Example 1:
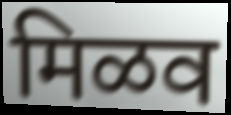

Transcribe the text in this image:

मिळव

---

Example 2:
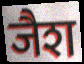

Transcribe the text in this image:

जैश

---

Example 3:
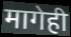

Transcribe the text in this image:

मागेही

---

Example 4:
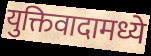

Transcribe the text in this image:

युक्तिवादामध्ये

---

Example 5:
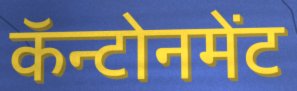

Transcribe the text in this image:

कॅन्टोनमेंट